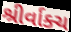
શ્રીર્વાક્ચ